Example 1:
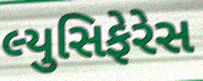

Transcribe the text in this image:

લ્યુસિફેરેસ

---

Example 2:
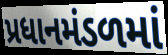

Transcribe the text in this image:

પ્રધાનમંડળમાં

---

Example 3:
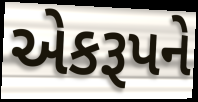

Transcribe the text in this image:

એકરૂપને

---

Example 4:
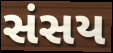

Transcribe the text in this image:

સંસય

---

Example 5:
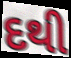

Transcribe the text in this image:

દથી